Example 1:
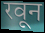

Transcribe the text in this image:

रवून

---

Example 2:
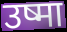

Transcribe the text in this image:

उष्मा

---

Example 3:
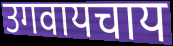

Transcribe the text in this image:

उगवायचाय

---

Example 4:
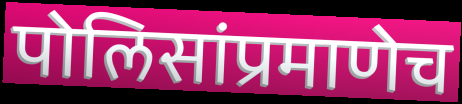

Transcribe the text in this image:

पोलिसांप्रमाणेच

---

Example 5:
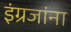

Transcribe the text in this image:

इंग्रजांना